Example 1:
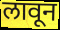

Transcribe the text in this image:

लावून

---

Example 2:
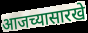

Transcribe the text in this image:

आजच्यासारखे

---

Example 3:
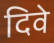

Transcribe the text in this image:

दिवे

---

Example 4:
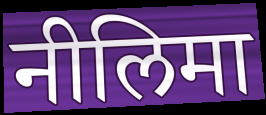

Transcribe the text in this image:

नीलिमा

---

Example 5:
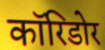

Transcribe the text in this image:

कॉरिडोर